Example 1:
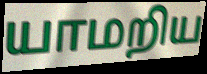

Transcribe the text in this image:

யாமறிய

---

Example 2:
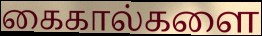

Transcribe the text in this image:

கைகால்களை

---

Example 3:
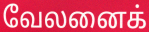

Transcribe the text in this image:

வேலனைக்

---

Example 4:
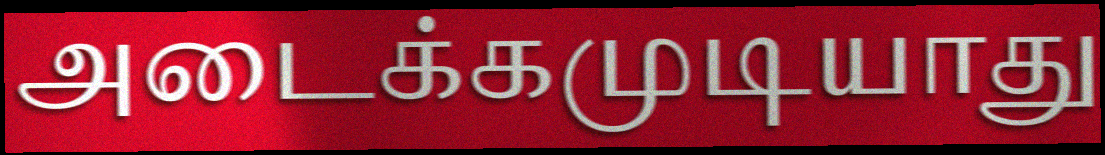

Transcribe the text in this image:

அடைக்கமுடியாது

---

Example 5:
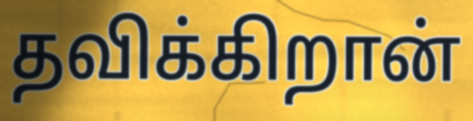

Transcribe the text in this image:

தவிக்கிறான்